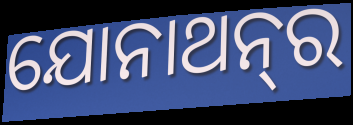
ଯୋନାଥନ୍‍ର